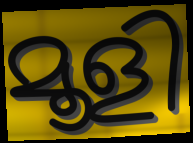
മൂളി